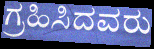
ಗ್ರಹಿಸಿದವರು